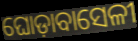
ଘୋଡ଼ାବାସେଳୀ